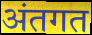
अंतगत